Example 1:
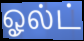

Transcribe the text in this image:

ஓல்ட்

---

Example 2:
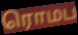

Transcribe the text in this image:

ரொமப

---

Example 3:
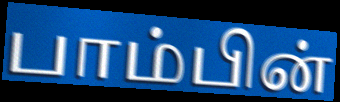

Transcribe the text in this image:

பாம்பின்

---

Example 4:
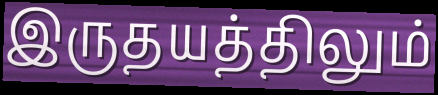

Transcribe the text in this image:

இருதயத்திலும்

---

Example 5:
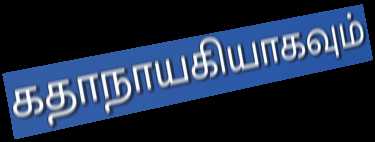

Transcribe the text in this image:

கதாநாயகியாகவும்